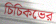
চিচিকভের